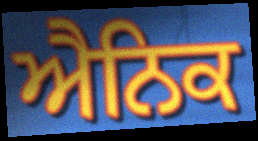
ਐਨਿਕ